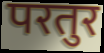
परतुर